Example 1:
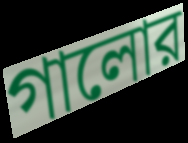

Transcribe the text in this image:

গালোর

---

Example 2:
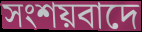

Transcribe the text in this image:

সংশয়বাদে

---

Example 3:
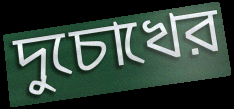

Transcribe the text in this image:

দুচোখের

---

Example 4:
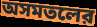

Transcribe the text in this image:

অসমতলের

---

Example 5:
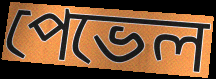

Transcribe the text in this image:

পেভেল